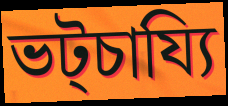
ভট্চায্যি